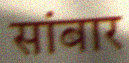
सांबार